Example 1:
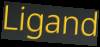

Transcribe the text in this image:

Ligand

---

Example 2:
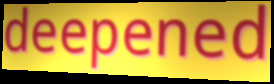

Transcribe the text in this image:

deepened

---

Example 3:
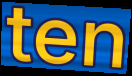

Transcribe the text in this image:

ten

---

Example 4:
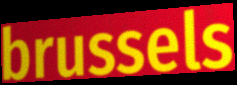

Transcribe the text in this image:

brussels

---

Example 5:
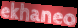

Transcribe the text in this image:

ekhaneo